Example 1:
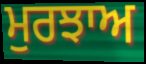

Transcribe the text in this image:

ਮੁਰਝਾਅ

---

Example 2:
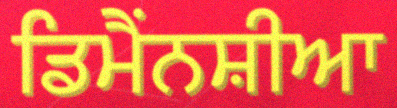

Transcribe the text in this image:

ਡਿਮੈਂਨਸ਼ੀਆ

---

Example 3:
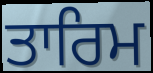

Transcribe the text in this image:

ਤਾਰਿਮ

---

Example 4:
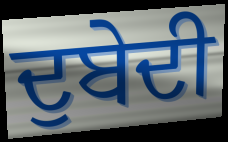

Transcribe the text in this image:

ਦੁਬੇਦੀ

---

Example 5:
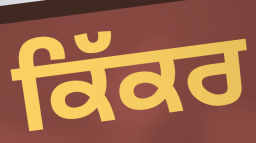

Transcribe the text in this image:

ਕਿੱਕਰ